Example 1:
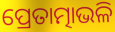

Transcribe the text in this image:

ପ୍ରେତାତ୍ମାଭଳି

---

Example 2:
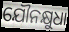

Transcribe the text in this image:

ଯୌନକ୍ଷୁଧା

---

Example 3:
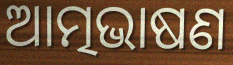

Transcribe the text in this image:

ଆତ୍ମଭାଷଣ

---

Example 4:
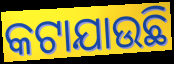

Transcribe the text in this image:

କଟାଯାଉଛି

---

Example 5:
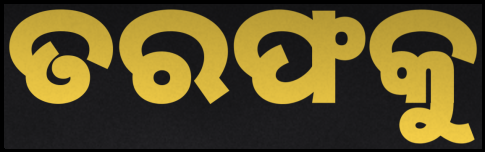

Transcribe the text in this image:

ତରଫକୁ